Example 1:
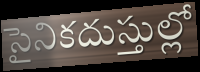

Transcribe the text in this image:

సైనికదుస్తుల్లో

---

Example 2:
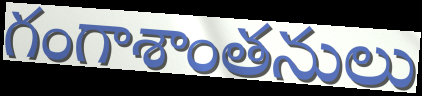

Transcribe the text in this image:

గంగాశాంతనులు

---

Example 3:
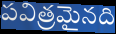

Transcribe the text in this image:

పవిత్రమైనది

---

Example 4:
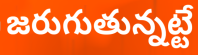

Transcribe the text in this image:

జరుగుతున్నట్టే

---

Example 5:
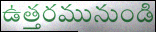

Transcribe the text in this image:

ఉత్తరమునుండి